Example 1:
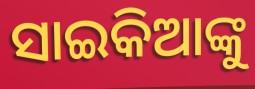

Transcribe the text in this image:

ସାଇକିଆଙ୍କୁ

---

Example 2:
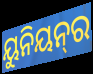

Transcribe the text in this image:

ୟୁନିୟନ୍‌ର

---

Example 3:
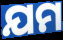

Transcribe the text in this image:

ଯମ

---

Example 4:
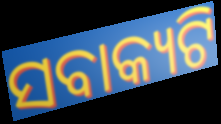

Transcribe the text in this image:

ସବାକ୍ୟଟି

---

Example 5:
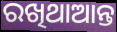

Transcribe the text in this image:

ରଖିଥାଆନ୍ତ